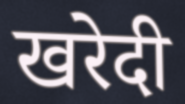
खरेदी